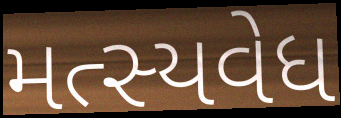
મત્સ્યવેધ